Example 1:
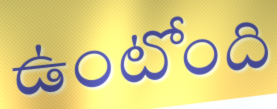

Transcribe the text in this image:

ఉంటోంది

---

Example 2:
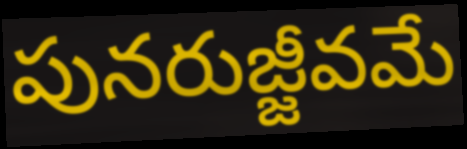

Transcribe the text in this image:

పునరుజ్జీవమే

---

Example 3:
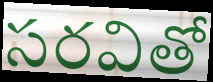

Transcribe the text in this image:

సరవితో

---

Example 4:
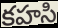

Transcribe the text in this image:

కహసి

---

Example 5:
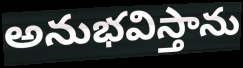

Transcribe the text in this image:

అనుభవిస్తాను